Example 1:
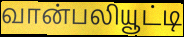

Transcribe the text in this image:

வான்பலியூட்டி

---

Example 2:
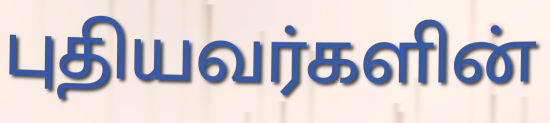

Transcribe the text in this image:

புதியவர்களின்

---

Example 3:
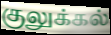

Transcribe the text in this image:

குலுக்கல்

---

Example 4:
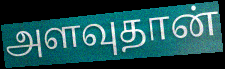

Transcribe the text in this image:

அளவுதான்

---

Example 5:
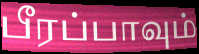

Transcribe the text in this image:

பீரப்பாவும்